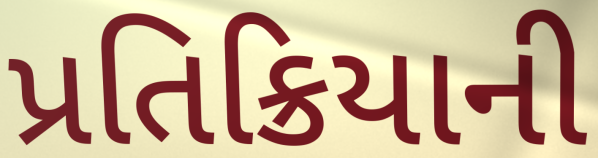
પ્રતિક્રિયાની